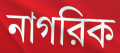
নাগরিক